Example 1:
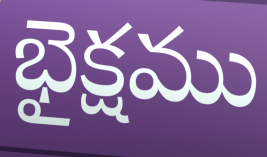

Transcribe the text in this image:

భైక్షము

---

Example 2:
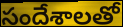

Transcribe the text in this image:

సందేశాలతో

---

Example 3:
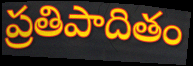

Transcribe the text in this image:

ప్రతిపాదితం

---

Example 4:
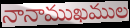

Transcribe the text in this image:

నానాముఖముల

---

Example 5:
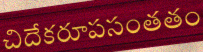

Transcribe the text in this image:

చిదేకరూపసంతతం